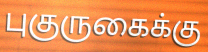
புகுருகைக்கு